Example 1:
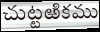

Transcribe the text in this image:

చుట్టఱికము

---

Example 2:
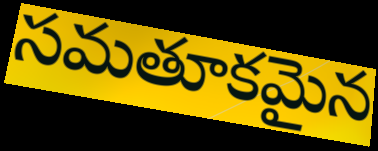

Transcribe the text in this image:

సమతూకమైన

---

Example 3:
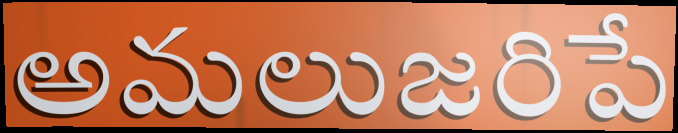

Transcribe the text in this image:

అమలుజరిపే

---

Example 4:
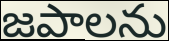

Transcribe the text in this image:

జపాలను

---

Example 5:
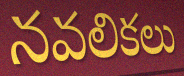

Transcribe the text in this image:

నవలికలు